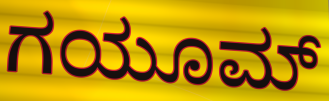
ಗಯೂಮ್